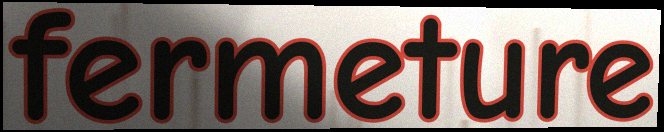
fermeture